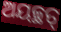
ଅୟଚ୍ଛତ୍